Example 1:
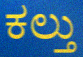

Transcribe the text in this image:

ಕಲ್ತು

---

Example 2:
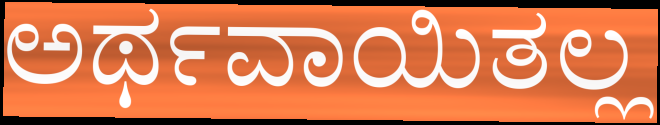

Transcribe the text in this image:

ಅರ್ಥವಾಯಿತಲ್ಲ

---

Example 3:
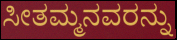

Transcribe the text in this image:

ಸೀತಮ್ಮನವರನ್ನು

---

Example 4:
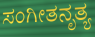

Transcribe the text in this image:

ಸಂಗೀತನೃತ್ಯ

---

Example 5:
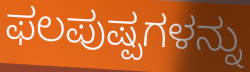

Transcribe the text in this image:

ಫಲಪುಷ್ಪಗಳನ್ನು